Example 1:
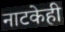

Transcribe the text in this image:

नाटकेही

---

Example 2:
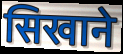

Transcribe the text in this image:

सिखाने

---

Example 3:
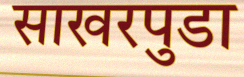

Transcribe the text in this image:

साखरपुडा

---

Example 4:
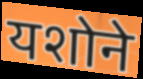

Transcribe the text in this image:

यशोने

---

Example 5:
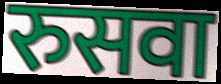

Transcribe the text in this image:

रुसवा